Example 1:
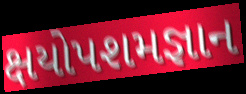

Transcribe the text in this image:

ક્ષયોપશમજ્ઞાન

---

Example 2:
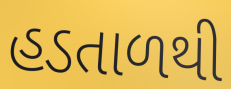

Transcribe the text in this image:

હડતાળથી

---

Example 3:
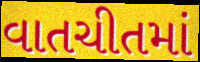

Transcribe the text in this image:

વાતચીતમાં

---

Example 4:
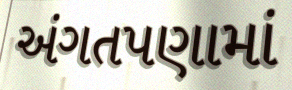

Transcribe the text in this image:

અંગતપણામાં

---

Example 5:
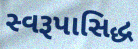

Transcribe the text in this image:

સ્વરૂપાસિદ્ધ